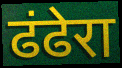
ढंढेरा